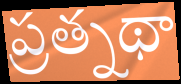
ప్రత్నథా